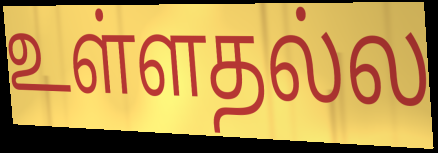
உள்ளதல்ல